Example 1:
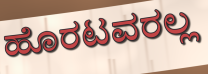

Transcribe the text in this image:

ಹೊರಟವರಲ್ಲ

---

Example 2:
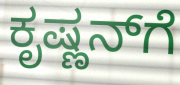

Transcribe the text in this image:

ಕೃಷ್ಣನ್‌ಗೆ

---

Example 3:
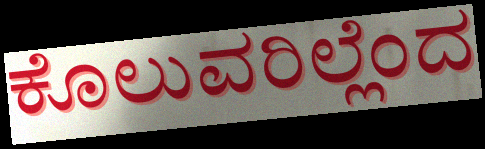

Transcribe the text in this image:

ಕೊಲುವರಿಲ್ಲೆಂದ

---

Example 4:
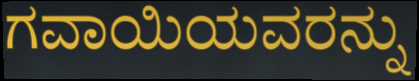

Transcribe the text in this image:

ಗವಾಯಿಯವರನ್ನು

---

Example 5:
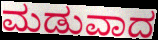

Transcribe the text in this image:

ಮಡುವಾದ